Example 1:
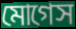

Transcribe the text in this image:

মোগেস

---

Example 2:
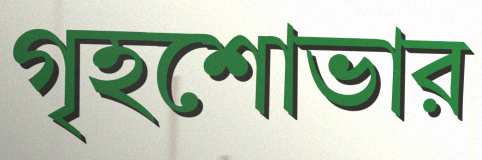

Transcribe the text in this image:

গৃহশোভার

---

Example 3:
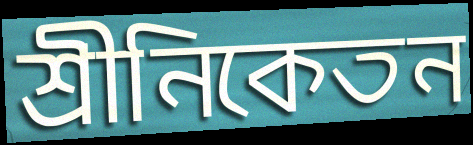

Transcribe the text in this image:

শ্রীনিকেতন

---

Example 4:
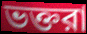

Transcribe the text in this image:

ভক্তরা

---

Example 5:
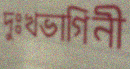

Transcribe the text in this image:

দুঃখভাগিনী